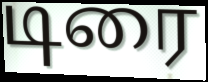
டிரை